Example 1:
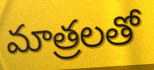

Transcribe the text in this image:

మాత్రలతో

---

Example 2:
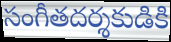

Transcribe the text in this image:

సంగీతదర్శకుడికి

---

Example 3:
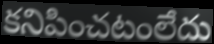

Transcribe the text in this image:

కనిపించటంలేదు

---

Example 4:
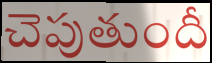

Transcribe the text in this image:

చెపుతుందీ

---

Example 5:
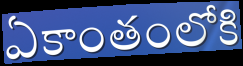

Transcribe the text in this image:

ఏకాంతంలోకి